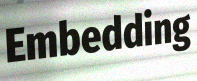
Embedding